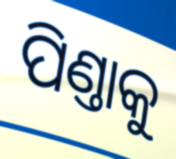
ପିଣ୍ତାକୁ